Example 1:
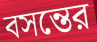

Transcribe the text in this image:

বসন্তের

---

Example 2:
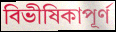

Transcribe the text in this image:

বিভীষিকাপূর্ণ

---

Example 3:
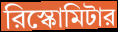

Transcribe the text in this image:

রিস্কোমিটার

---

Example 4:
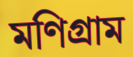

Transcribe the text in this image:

মণিগ্রাম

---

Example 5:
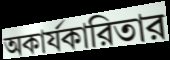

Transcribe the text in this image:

অকার্যকারিতার